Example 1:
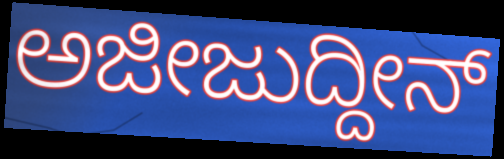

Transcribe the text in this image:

ಅಜೀಜುದ್ದೀನ್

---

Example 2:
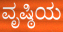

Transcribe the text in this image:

ವೃಷ್ಠಿಯ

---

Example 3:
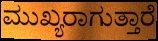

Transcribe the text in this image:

ಮುಖ್ಯರಾಗುತ್ತಾರೆ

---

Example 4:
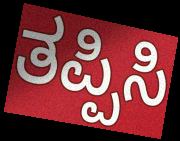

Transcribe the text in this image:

ತಪ್ಪಿಸಿ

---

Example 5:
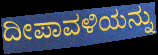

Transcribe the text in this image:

ದೀಪಾವಳಿಯನ್ನು